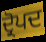
ਦ੍ਰੋਪਦ